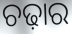
ଚଢ଼ାର